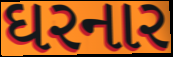
ઘરનાર